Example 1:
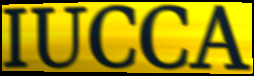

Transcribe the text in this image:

IUCCA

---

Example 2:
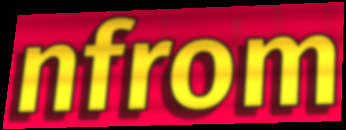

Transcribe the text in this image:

nfrom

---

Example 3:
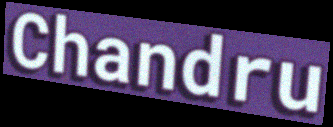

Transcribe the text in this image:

Chandru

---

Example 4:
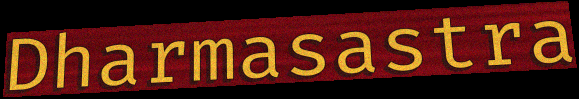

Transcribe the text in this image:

Dharmasastra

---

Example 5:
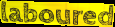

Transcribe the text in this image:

laboured